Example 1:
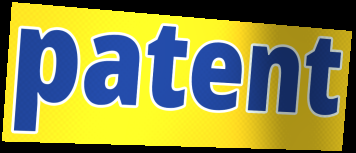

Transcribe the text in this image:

patent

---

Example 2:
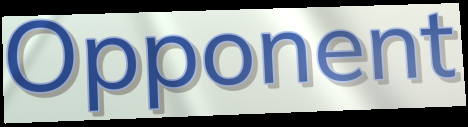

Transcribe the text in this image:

Opponent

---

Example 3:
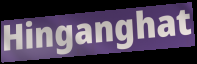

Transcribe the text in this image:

Hinganghat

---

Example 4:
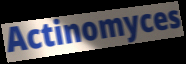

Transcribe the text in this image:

Actinomyces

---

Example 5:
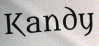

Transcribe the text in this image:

Kandy